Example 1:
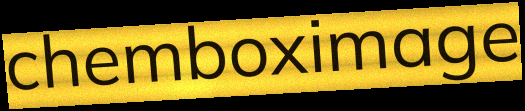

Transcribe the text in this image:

chemboximage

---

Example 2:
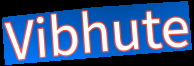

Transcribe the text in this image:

Vibhute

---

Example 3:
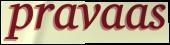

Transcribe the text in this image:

pravaas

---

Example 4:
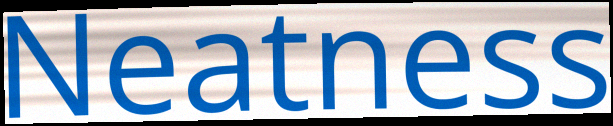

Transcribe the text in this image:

Neatness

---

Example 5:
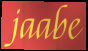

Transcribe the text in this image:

jaabe